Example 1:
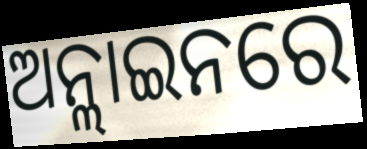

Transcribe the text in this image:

ଅନ୍ଲାଇନରେ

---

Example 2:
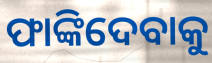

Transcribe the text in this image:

ଫାଙ୍କିଦେବାକୁ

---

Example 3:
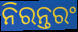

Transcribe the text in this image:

ନିରନ୍ତରଂ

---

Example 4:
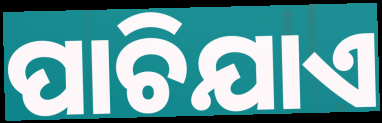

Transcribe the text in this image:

ପାଚିଯାଏ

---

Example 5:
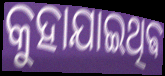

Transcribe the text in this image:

କୁହାଯାଇଥିଵ